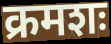
क्रमशः